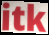
itk